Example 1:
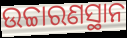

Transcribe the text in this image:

ଉଚ୍ଚାରଣସ୍ଥାନ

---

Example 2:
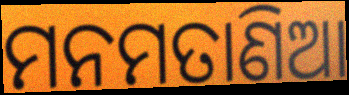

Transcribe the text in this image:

ମନମତାଣିଆ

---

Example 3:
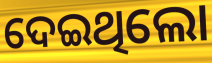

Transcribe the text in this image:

ଦେଇଥିଲୋ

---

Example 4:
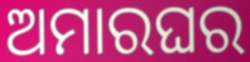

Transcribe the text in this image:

ଅମାରଘର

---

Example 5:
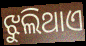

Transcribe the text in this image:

ଝୁଲିଥାଏ